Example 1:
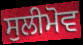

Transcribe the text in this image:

ਸੁਲੀਮੋਵ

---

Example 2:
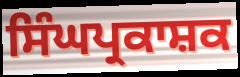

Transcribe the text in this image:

ਸਿੰਘਪ੍ਰਕਾਸ਼ਕ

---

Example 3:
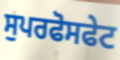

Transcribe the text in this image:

ਸੁਪਰਫੋਸਫੇਟ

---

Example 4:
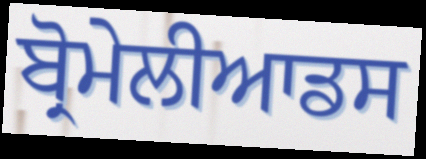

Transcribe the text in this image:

ਬ੍ਰੋਮੇਲੀਆਡਸ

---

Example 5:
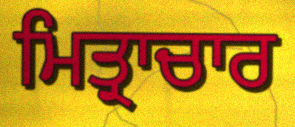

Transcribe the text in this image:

ਮਿਤ੍ਰਾਚਾਰ